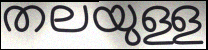
തലയുള്ള